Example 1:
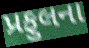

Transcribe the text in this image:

પ્રફુલના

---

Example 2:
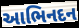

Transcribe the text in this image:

આભિનદન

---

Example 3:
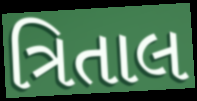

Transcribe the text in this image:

ત્રિતાલ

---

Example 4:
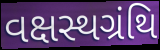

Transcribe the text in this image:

વક્ષસ્થગ્રંથિ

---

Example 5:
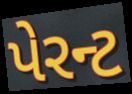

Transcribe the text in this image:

પેરન્ટ